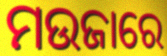
ମଉଜାରେ